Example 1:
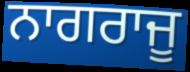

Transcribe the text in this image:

ਨਾਗਰਾਜੂ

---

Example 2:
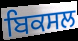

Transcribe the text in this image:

ਬਿਕਸਲ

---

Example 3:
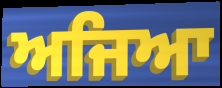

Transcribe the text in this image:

ਅਜਿਆ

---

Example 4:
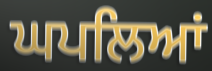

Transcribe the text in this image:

ਘਪਲਿਆਂ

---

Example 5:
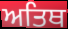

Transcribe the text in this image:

ਅਤਿਥ